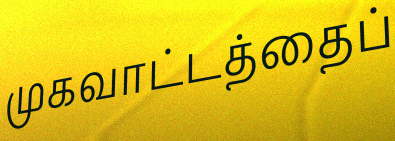
முகவாட்டத்தைப்